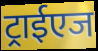
ट्राईएज